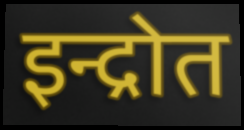
इन्द्रोत